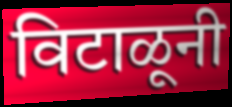
विटाळूनी